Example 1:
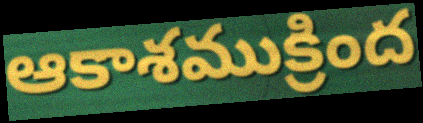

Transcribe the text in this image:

ఆకాశముక్రింద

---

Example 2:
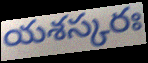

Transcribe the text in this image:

యశస్కరః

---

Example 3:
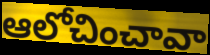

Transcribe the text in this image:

ఆలోచించావా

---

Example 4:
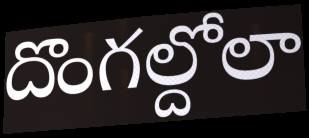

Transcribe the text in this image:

దొంగల్దోలా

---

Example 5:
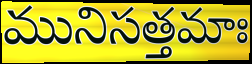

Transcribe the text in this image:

మునిసత్తమాః